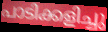
പാടിക്കളിച്ചു